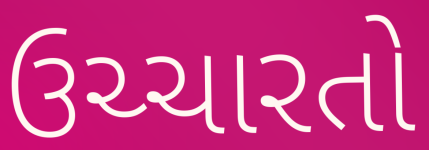
ઉચ્ચારતો